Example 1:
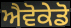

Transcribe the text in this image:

ਐਵੋਕੇਡੋ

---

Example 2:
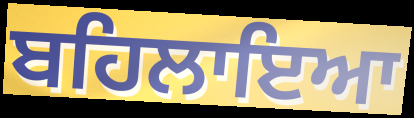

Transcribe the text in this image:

ਬਹਿਲਾਇਆ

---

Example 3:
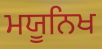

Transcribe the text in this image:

ਮਯੂਨਿਖ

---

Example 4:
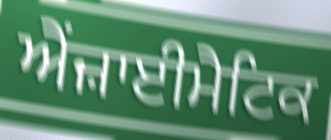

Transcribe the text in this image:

ਐਂਜ਼ਾਈਮੈਟਿਕ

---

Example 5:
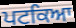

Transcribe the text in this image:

ਪਟਕਿਆ